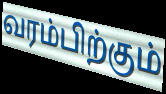
வரம்பிற்கும்